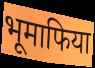
भूमाफिया